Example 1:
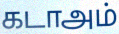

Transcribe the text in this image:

கடாஅம்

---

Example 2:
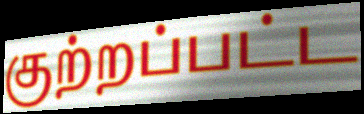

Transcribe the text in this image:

குற்றப்பட்ட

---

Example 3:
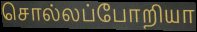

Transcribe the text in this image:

சொல்லப்போறியா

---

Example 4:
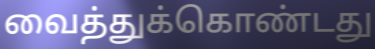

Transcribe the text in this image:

வைத்துக்கொண்டது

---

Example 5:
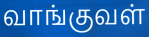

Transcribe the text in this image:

வாங்குவள்